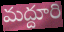
మద్దూరి